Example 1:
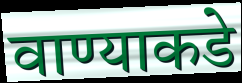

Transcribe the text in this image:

वाण्याकडे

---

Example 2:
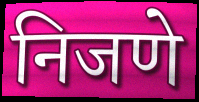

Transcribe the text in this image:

निजणे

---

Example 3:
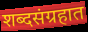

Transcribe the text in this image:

शब्दसंग्रहात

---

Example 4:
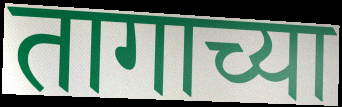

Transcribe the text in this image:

तागाच्या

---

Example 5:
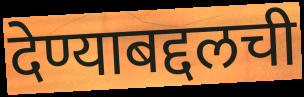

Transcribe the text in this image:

देण्याबद्दलची